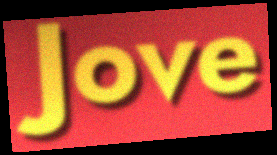
Jove